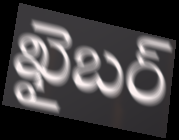
ఖైబర్